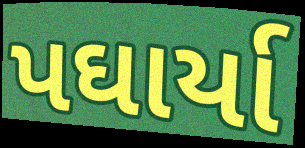
પઘાર્યા